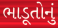
ભાડૂતોનું